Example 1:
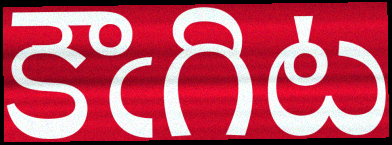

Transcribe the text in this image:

కౌఁగిట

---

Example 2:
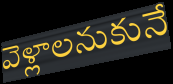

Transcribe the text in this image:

వెళ్లాలనుకునే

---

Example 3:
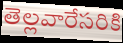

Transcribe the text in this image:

తెల్లవారేసరికి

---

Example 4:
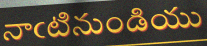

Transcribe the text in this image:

నాఁటినుండియు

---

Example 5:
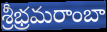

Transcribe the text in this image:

శ్రీభ్రమరాంబా